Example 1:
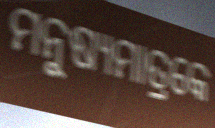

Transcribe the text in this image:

ମନୁଷ୍ୟମାତ୍ରକେ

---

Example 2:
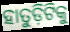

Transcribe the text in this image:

ହାତୁଡ଼ିଟିକୁ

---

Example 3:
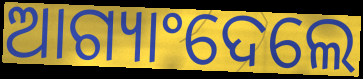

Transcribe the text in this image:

ଆଗ୍ୟାଂଦେଲେ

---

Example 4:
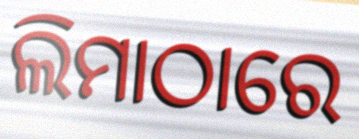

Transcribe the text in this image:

ଲିମାଠାରେ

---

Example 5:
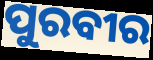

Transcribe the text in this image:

ପୁରବୀର